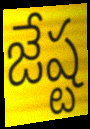
జేష్ట